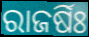
ରାଜର୍ଷିଃ